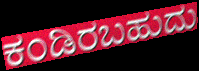
ಕಂಡಿರಬಹುದು